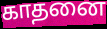
காதனை